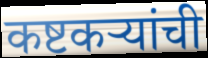
कष्टकऱ्यांची